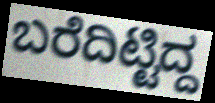
ಬರೆದಿಟ್ಟಿದ್ದ